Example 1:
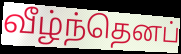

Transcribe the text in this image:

வீழ்ந்தெனப்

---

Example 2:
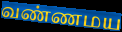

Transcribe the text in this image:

வண்ணமய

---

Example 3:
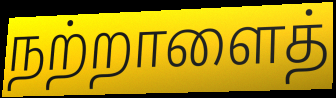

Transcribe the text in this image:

நற்றாளைத்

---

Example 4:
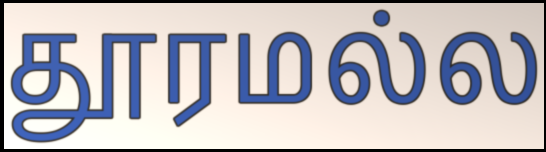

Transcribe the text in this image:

தூரமல்ல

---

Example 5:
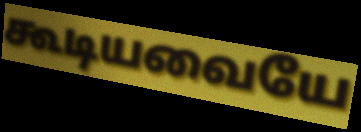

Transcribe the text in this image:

கூடியவையே